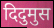
दिदुमुस